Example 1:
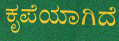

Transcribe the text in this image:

ಕೃಪೆಯಾಗಿದೆ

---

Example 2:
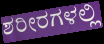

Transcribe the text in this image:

ಶರೀರಗಳಲ್ಲಿ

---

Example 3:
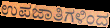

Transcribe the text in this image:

ಉಪಜಾತಿಗಳಿಂದ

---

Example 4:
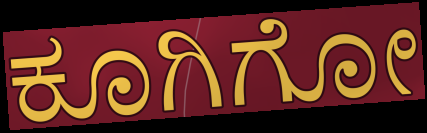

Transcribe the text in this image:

ಕೂಗಿಗೋ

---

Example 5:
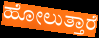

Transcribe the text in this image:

ಹೋಲುತ್ತಾರೆ